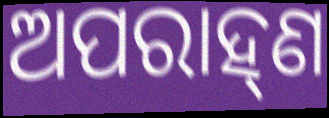
ଅପରାହ୍‍ଣ